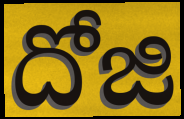
దోజి